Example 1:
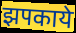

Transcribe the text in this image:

झपकाये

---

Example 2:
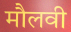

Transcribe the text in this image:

मौलवी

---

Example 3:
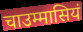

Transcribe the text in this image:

चाउम्मासियं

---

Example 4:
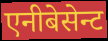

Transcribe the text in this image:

एनीबेसेन्ट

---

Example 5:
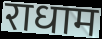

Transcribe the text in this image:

राधाम